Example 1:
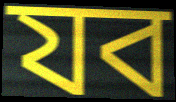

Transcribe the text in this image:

যব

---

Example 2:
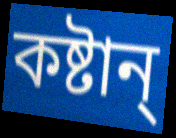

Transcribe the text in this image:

কষ্টান্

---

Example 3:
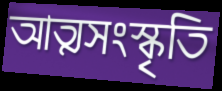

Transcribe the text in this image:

আত্মসংস্কৃতি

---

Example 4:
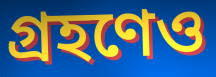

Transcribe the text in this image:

গ্রহণেও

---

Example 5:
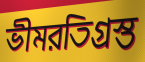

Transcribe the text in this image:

ভীমরতিগ্রস্ত